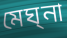
মেঘ্‌না